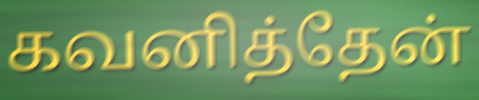
கவனித்தேன்